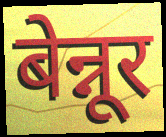
बेन्नूर